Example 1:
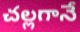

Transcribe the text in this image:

చల్లగానే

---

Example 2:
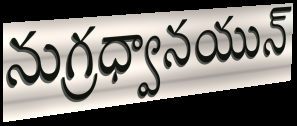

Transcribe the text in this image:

నుగ్రధ్వానయున్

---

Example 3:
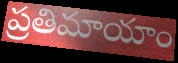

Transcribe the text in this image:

ప్రతిమాయాం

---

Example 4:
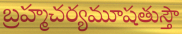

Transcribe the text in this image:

బ్రహ్మచర్యమూషతుస్తౌ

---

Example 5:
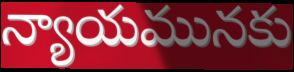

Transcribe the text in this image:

న్యాయమునకు